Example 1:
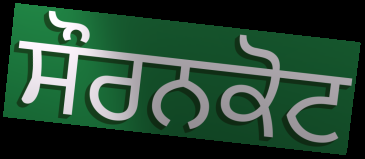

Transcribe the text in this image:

ਸੌਰਨਕੋਟ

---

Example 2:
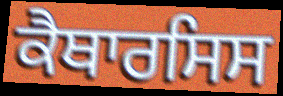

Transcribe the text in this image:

ਕੈਥਾਰਸਿਸ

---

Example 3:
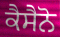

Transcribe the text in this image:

ਕੈਸੈਨੋ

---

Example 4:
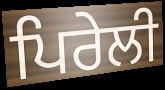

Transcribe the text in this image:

ਪਿਰੇਲੀ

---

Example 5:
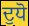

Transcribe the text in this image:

ਦੁਧੋ